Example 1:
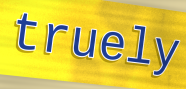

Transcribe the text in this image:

truely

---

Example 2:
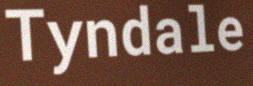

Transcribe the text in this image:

Tyndale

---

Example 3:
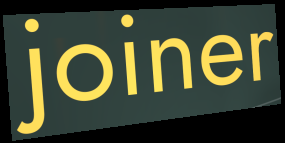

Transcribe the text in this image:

joiner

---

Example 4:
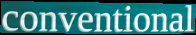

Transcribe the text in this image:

conventional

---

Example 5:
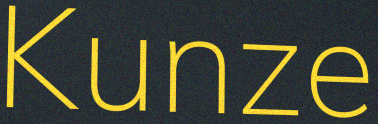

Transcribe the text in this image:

Kunze